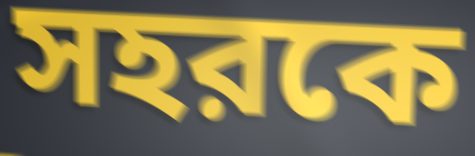
সহরকে